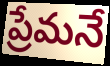
ప్రేమనే